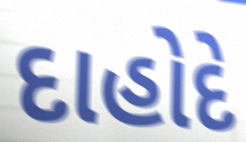
દાહોદે